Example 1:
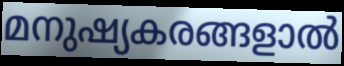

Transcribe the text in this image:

മനുഷ്യകരങ്ങളാൽ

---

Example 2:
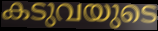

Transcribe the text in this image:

കടുവയുടെ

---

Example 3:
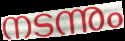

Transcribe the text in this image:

നടന്നും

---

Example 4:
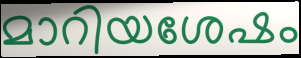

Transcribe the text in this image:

മാറിയശേഷം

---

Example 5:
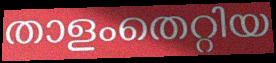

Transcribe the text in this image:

താളംതെറ്റിയ